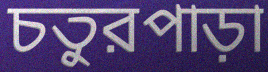
চতুরপাড়া